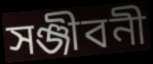
সঞ্জীবনী